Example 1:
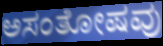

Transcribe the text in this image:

ಅಸಂತೋಷವು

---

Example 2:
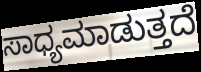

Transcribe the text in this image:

ಸಾಧ್ಯಮಾಡುತ್ತದೆ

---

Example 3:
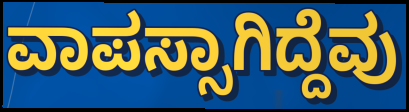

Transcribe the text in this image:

ವಾಪಸ್ಸಾಗಿದ್ದೆವು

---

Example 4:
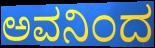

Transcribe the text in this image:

ಅವನಿಂದ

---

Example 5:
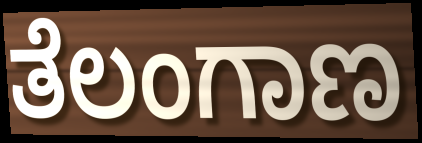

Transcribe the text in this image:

ತೆಲಂಗಾಣ